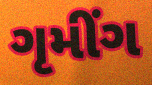
ગૃમીંગ